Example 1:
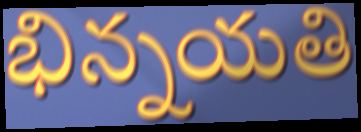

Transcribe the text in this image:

భిన్నయతి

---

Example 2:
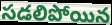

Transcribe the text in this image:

సడలిపోయిన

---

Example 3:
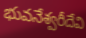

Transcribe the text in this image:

భువనేశ్వరీదేవి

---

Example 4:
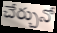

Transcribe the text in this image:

చేర్చునో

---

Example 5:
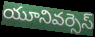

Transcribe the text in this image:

యూనివర్సెస్